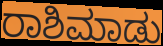
ರಾಶಿಮಾಡು